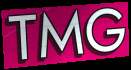
TMG